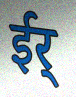
ईर्